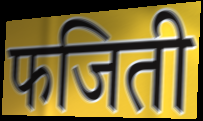
फजिती